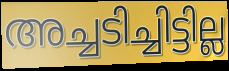
അച്ചടിച്ചിട്ടില്ല